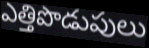
ఎత్తిపొడుపులు